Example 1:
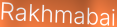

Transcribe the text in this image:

Rakhmabai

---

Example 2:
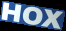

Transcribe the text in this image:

HOX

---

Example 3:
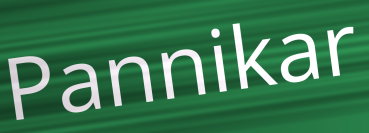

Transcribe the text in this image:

Pannikar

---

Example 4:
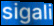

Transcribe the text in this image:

sigali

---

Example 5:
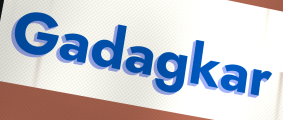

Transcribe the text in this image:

Gadagkar